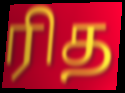
ரித